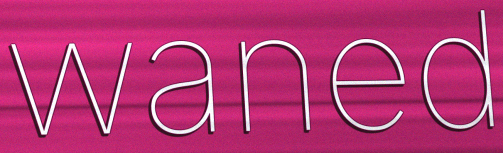
waned